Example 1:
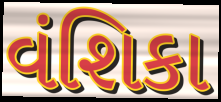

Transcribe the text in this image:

વંશિકા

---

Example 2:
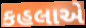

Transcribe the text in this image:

કહલાએ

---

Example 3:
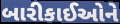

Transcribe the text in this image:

બારીકાઈઓને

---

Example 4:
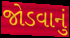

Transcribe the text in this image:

જોડવાનું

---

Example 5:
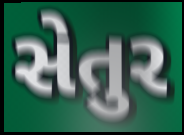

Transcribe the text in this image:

સેતુર